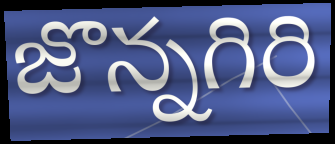
జొన్నగిరి